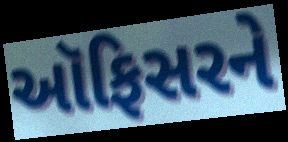
ઑફિસરને